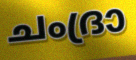
ചംദ്രാ